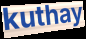
kuthay